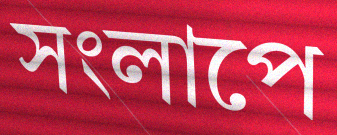
সংলাপে